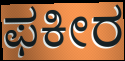
ಫಕೀರ